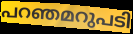
പറഞമറുപടി